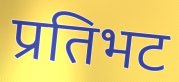
प्रतिभट